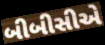
બીબીસીએ